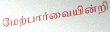
மேற்பார்வையின்றி